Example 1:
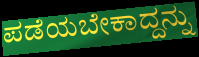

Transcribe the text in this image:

ಪಡೆಯಬೇಕಾದ್ದನ್ನು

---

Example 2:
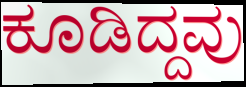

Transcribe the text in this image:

ಕೂಡಿದ್ದವು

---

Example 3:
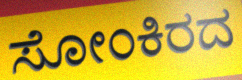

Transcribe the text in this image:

ಸೋಂಕಿರದ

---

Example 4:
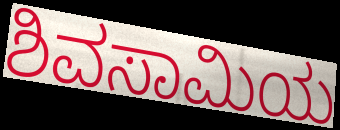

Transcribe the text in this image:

ಶಿವಸಾಮಿಯ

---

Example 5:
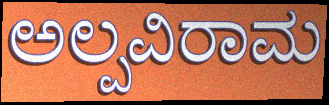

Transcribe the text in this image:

ಅಲ್ಪವಿರಾಮ